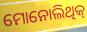
ମୋନୋଲିଥିକ୍